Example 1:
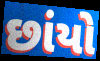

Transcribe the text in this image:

છાંયો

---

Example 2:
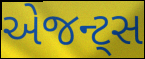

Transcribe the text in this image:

એજન્ટ્સ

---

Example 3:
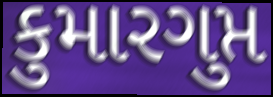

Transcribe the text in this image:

કુમારગુપ્ત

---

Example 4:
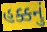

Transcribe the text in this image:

હક્કનું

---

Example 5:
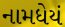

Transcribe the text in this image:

નામધેયં